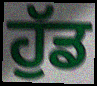
ਹੁੱਡ